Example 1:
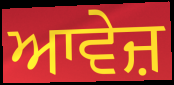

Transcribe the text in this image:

ਆਵੇਜ਼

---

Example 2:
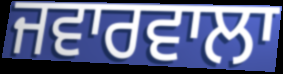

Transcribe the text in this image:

ਜਵਾਰਵਾਲਾ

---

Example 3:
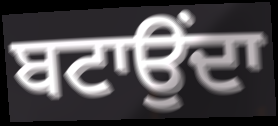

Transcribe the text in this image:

ਬਟਾਉਂਦਾ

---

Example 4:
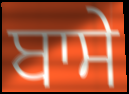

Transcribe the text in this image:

ਬਾਸੇ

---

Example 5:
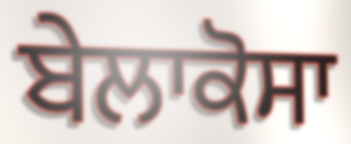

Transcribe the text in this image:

ਬੇਲਾਕੋਸਾ